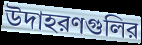
উদাহরণগুলির